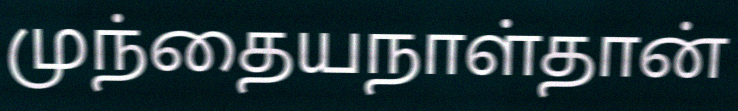
முந்தையநாள்தான்